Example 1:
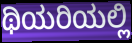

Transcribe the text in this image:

ಥಿಯರಿಯಲ್ಲಿ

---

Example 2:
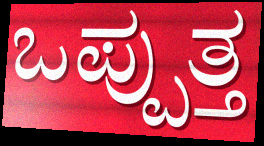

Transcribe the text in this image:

ಒಪ್ಪುತ್ತ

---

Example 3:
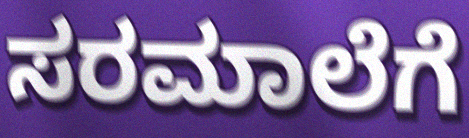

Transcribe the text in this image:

ಸರಮಾಲೆಗೆ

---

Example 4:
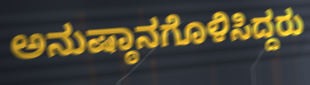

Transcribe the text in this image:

ಅನುಷ್ಠಾನಗೊಳಿಸಿದ್ದರು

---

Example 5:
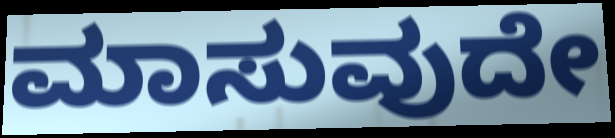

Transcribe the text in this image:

ಮಾಸುವುದೇ